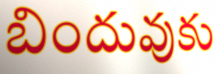
బిందువుకు